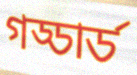
গড্ডার্ড